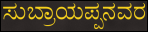
ಸುಬ್ರಾಯಪ್ಪನವರ